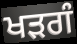
ਖੜਗੰ